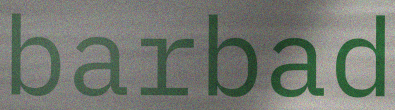
barbad